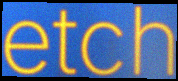
etch